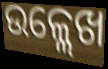
ଉଳ୍ଲେଖ